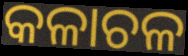
କଳାଚଳ